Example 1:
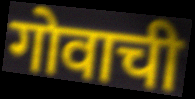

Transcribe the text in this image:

गोवाची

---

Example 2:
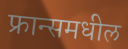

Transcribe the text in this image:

फ्रान्समधील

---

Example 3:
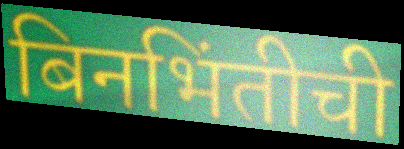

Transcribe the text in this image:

बिनभिंतीची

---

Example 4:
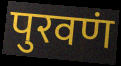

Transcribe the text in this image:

पुरवणं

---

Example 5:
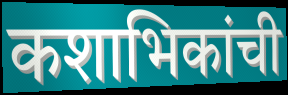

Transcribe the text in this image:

कशाभिकांची